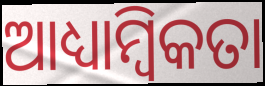
ଆଧ୍ୟାମ୍ବିକତା